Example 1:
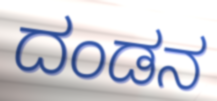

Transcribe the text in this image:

ದಂಡನ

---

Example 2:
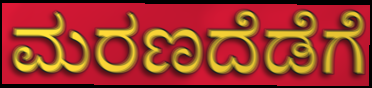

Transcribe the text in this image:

ಮರಣದೆಡೆಗೆ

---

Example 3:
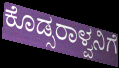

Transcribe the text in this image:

ಕೊಡ್ಸರಾಳ್ವನಿಗೆ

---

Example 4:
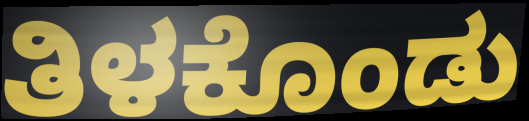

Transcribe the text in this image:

ತಿಳಕೊಂಡು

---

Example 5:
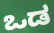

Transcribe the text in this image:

ಒಡ